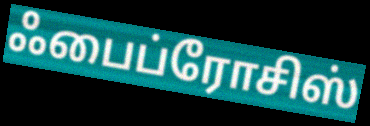
ஃபைப்ரோசிஸ்